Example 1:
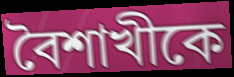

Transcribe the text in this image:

বৈশাখীকে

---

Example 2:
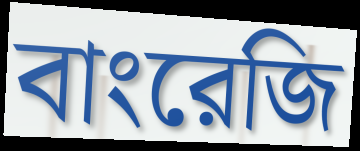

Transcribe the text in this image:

বাংরেজি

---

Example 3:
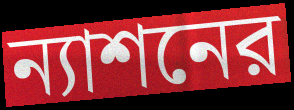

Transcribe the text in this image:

ন্যাশনের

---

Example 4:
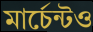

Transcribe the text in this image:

মার্চেন্টও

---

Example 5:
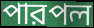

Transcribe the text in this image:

পারপল